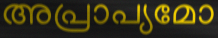
അപ്രാപ്യമോ